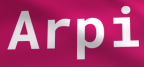
Arpi